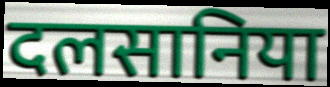
दलसानिया